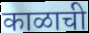
काळाची